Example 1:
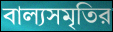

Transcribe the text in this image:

বাল্যসমৃতির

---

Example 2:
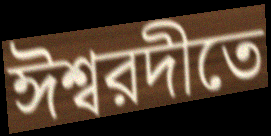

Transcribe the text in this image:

ঈশ্বরদীতে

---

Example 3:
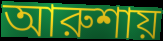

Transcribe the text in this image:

আরুশায়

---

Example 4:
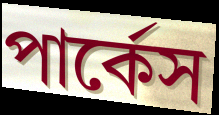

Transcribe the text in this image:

পার্কেস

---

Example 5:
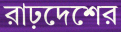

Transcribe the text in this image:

রাঢ়দেশের